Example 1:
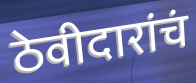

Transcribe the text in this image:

ठेवीदारांचं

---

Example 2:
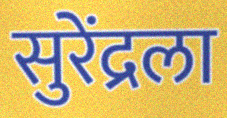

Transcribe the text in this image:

सुरेंद्रला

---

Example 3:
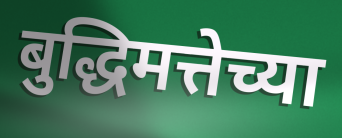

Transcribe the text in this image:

बुद्धिमत्तेच्या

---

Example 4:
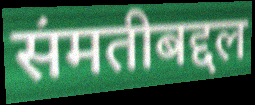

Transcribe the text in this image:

संमतीबद्दल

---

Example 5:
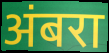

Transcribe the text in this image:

अंबरा